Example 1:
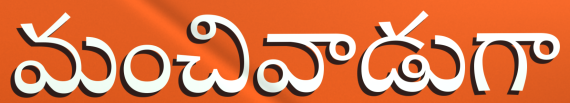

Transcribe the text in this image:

మంచివాడుగా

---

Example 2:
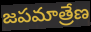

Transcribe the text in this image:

జపమాత్రేణ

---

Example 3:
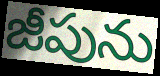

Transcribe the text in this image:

జీపును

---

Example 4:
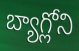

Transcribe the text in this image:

బ్యాగ్లోని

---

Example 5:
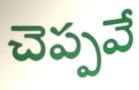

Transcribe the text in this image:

చెప్పవే